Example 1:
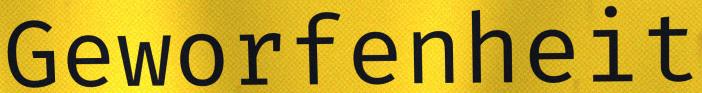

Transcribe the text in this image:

Geworfenheit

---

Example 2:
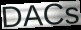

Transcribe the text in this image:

DACs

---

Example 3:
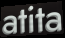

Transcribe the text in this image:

atita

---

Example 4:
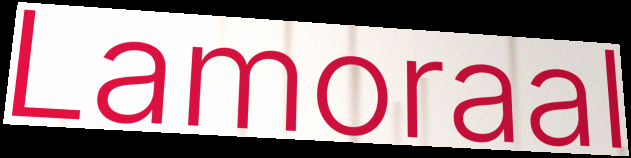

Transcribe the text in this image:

Lamoraal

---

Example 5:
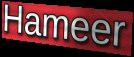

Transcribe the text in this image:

Hameer